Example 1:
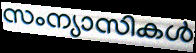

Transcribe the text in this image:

സംന്യാസികൾ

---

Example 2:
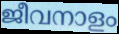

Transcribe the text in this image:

ജീവനാളം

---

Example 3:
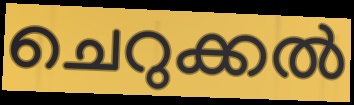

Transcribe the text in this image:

ചെറുക്കൽ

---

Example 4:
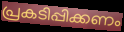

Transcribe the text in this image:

പ്രകടിപ്പിക്കണം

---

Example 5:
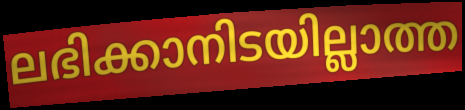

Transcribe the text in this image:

ലഭിക്കാനിടയില്ലാത്ത